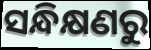
ସନ୍ଧିକ୍ଷଣରୁ